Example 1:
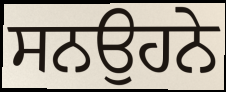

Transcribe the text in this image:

ਸਨਉਹਨੇ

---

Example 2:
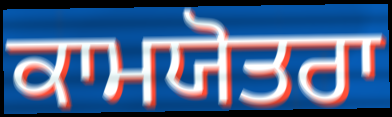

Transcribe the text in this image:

ਕਾਮਯੋਤਰਾ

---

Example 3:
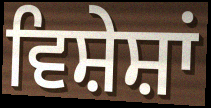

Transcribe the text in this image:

ਵਿਸ਼ੇਸ਼ਾਂ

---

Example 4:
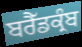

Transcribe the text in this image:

ਬਰੈੱਡਕ੍ਰੰਬ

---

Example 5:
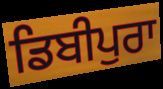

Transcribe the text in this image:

ਡਿਬੀਪੁਰਾ